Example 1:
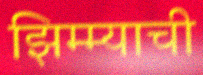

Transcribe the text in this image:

झिम्म्याची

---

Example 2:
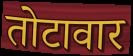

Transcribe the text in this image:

तोटावार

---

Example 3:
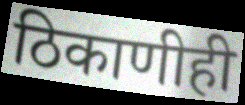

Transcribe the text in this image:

ठिकाणीही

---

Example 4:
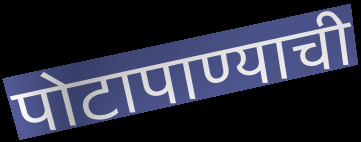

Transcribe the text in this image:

पोटापाण्याची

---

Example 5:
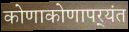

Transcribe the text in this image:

कोणाकोणापर्यंत